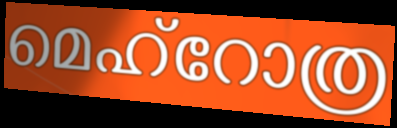
മെഹ്റോത്ര